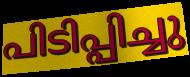
പിടിപ്പിച്ചു